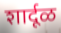
शार्दूळ